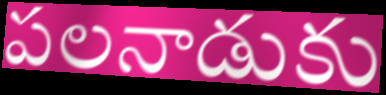
పలనాడుకు